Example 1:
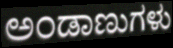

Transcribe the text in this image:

ಅಂಡಾಣುಗಳು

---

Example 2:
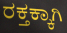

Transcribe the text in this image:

ರಕ್ತಕ್ಕಾಗಿ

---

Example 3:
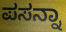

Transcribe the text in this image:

ಪಸನ್ನಾ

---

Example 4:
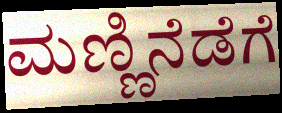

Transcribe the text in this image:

ಮಣ್ಣಿನೆಡೆಗೆ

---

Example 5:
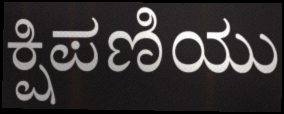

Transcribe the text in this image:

ಕ್ಷಿಪಣಿಯು